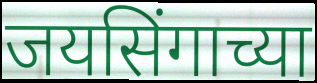
जयसिंगाच्या